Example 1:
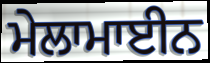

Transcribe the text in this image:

ਮੇਲਾਮਾਈਨ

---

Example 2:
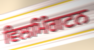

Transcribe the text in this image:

ਵਿਲਮਿੰਗਟਨ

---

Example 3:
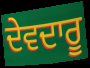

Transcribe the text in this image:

ਦੇਵਦਾਰੂ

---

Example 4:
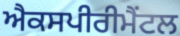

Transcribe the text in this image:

ਐਕਸਪੀਰੀਮੈਂਟਲ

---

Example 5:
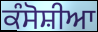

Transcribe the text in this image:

ਕੰਸੋਸ਼ੀਆ